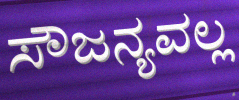
ಸೌಜನ್ಯವಲ್ಲ